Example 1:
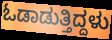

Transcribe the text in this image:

ಓಡಾಡುತ್ತಿದ್ದಳು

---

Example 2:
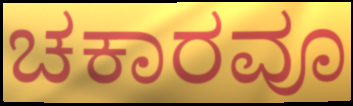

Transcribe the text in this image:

ಚಕಾರವೂ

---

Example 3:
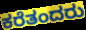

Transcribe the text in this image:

ಕರೆತಂದರು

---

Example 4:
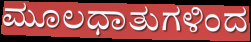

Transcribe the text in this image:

ಮೂಲಧಾತುಗಳಿಂದ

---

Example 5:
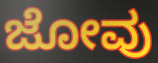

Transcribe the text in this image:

ಜೋವು